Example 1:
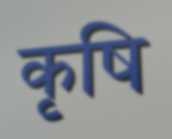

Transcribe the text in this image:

कृषि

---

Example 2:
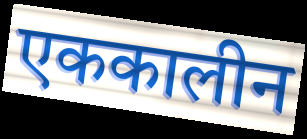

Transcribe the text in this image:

एककालीन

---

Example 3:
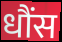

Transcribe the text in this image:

धौंस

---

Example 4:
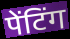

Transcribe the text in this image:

पेंटिंग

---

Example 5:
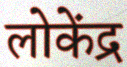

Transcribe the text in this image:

लोकेंद्र